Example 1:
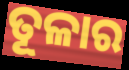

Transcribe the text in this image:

ତୂଳାର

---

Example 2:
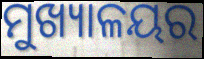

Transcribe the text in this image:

ମୁଖ୍ୟାଳୟର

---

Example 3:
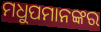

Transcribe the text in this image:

ମଧୁପମାନଙ୍କର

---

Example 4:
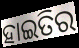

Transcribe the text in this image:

ହାଇତିର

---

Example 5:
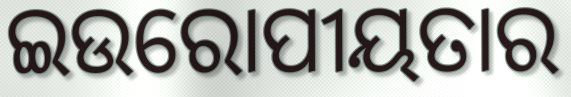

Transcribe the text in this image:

ଇଉରୋପୀୟତାର